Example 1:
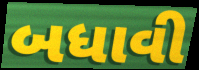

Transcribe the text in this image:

બધાવી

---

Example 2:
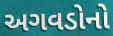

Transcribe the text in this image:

અગવડોનો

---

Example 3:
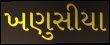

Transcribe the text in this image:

ખણુસીયા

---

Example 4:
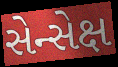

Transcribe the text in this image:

સેન્સેક્ષ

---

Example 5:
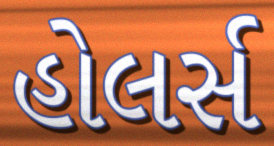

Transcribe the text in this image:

હોલર્સ